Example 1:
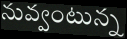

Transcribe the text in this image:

నువ్వంటున్న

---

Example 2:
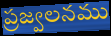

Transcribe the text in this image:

ప్రజ్వలనము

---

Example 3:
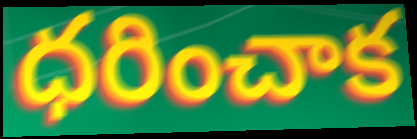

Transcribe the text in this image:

ధరించాక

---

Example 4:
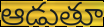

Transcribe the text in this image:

ఆడుతూ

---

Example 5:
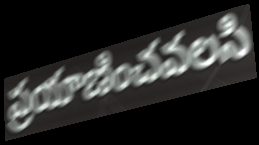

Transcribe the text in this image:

ప్రయాణించవలసి